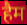
हैम